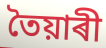
তৈয়াৰী